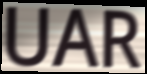
UAR